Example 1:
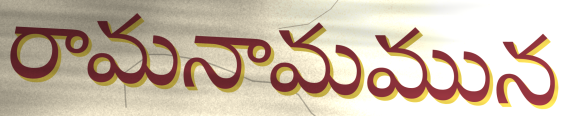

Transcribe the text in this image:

రామనామమున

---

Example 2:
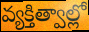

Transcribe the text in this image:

వ్యక్తిత్వాల్లో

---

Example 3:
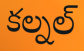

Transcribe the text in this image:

కల్నల్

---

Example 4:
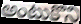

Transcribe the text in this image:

అంటుకొని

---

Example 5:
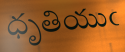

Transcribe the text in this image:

ధృతియుఁ